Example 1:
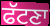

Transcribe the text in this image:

ਫੱਟਣਾ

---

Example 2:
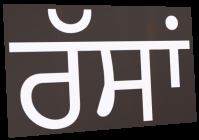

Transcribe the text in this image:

ਰੱਸਾਂ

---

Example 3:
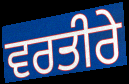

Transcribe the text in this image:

ਵਰਤੀਰੇ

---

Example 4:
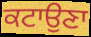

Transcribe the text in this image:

ਕਟਾਉਣਾ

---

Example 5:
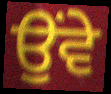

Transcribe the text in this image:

ਉੰਵੇ